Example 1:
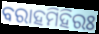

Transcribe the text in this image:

ବରାହମିହିରଃ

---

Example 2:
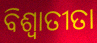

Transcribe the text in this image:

ବିଶ୍ଵାତୀତା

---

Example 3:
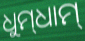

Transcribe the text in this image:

ଧୁମ୍‌ଧାମ୍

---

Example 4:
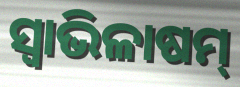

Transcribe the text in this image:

ସ୍ବାଭିଳାଷମ୍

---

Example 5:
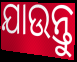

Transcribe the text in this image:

ଯାଉନ୍ତୁ